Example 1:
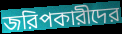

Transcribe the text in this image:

জরিপকারীদের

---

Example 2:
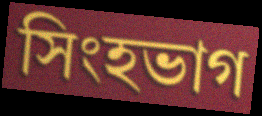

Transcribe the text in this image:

সিংহভাগ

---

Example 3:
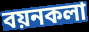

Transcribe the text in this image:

বয়নকলা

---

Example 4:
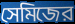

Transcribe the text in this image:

সেমিজের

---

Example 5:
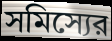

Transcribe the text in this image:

সমিস্যের